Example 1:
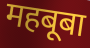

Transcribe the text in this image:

महबूबा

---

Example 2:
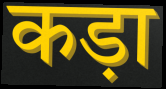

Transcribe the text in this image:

कड़ा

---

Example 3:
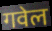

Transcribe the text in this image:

गवेल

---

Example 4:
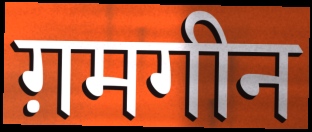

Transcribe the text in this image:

ग़मगीन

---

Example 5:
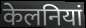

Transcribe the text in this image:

केलनियां